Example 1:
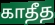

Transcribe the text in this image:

காதீத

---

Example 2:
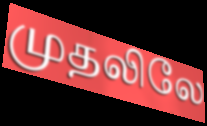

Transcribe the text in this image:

முதலிலே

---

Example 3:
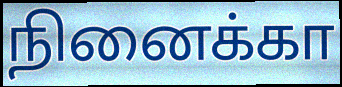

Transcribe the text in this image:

நினைக்கா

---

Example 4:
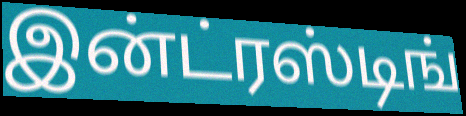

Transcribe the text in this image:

இன்ட்ரஸ்டிங்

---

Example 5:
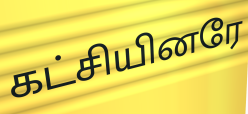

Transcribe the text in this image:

கட்சியினரே